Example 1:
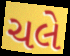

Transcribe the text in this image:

ચલે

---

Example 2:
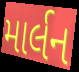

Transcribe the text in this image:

માર્લન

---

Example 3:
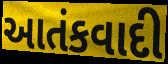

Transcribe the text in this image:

આતંકવાદી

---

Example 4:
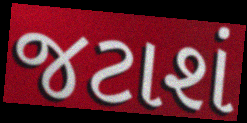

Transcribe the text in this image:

જટાશં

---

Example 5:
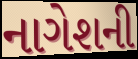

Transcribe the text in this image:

નાગેશની